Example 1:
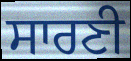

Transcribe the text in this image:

ਸਾਰਣੀ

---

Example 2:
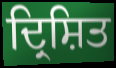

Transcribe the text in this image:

ਦ੍ਰਿਸ਼ਿਤ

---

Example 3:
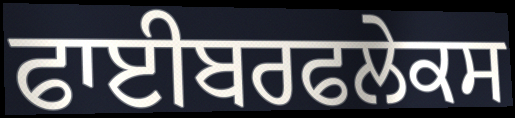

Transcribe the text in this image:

ਫਾਈਬਰਫਲੇਕਸ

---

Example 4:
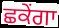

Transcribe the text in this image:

ਛਕੇਂਗਾ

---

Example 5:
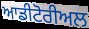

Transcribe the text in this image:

ਆਡੀਟੋਰੀਅਲ